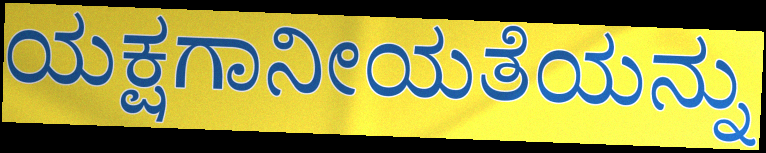
ಯಕ್ಷಗಾನೀಯತೆಯನ್ನು